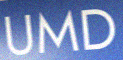
UMD